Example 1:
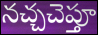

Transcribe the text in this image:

నచ్చచెప్తూ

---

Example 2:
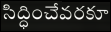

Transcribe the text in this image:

సిద్ధించేవరకూ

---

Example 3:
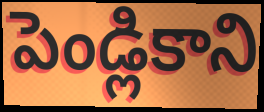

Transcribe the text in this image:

పెండ్లికాని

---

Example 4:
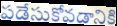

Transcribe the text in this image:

పడేసుకోవడానికి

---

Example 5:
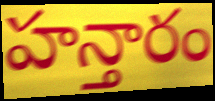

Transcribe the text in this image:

హన్తారం